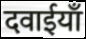
दवाईयाँ